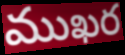
ముఖర